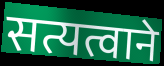
सत्यत्वाने